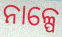
ନାଳ୍ପେ